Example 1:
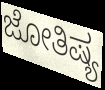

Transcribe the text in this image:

ಜೋತಿಷ್ಯ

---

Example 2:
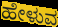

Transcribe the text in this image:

ಹೇಳುವ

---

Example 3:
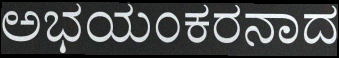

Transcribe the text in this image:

ಅಭಯಂಕರನಾದ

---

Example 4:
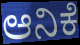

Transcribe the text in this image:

ಆನಿಕೆ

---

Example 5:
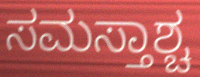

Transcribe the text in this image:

ಸಮಸ್ತಾಶ್ಚ